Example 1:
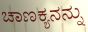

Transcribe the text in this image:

ಚಾಣಕ್ಯನನ್ನು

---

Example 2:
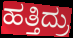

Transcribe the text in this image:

ಹತ್ತಿದ್ರು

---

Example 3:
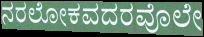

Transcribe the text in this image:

ನರಲೋಕವದರವೊಲೇ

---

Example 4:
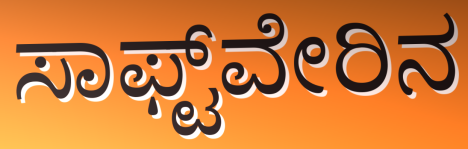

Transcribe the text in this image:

ಸಾಫ್ಟ್‌ವೇರಿನ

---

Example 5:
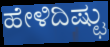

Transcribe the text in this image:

ಹೇಳಿದಿಷ್ಟು